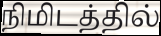
நிமிடத்தில்